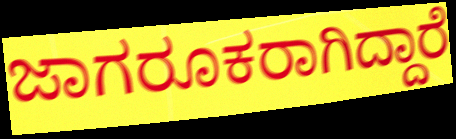
ಜಾಗರೂಕರಾಗಿದ್ದಾರೆ